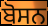
ਬੋਸਨ